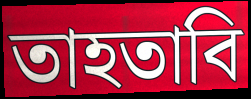
তাহতাবি